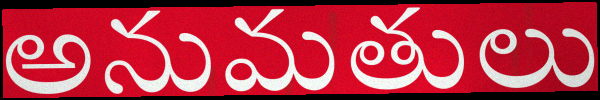
అనుమతులు